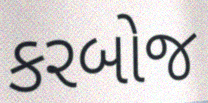
કરબોજ